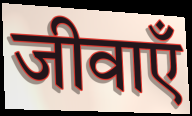
जीवाएँ